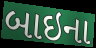
બાઇના